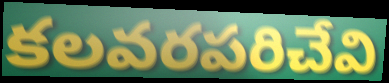
కలవరపరిచేవి